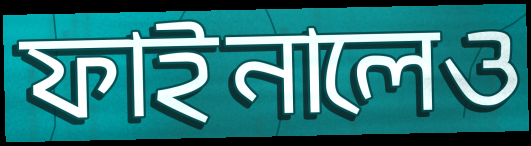
ফাইনালেও